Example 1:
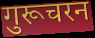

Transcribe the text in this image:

गुरूचरन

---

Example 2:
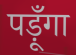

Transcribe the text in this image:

पड़ूँगा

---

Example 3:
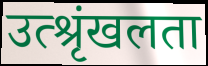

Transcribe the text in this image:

उत्श्रृंखलता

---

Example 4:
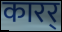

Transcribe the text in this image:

कारर्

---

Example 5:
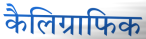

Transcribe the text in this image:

कैलिग्राफिक